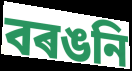
বৰঙনি